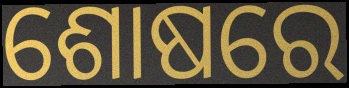
ଶୋଷରେ